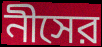
নীসের